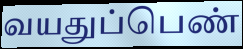
வயதுப்பெண்